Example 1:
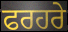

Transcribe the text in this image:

ਫਰਹਰੇ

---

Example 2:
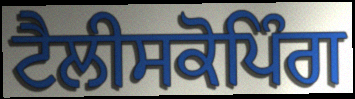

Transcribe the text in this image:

ਟੈਲੀਸਕੋਪਿੰਗ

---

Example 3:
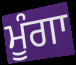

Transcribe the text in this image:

ਮੂੰਗਾ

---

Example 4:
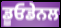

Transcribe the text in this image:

ਡੂਓਡੇਨਲ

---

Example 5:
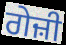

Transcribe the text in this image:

ਗੇਜ਼ੀ